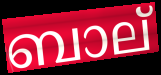
ബാല്